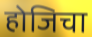
होजिचा